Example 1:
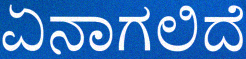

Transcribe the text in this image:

ಏನಾಗಲಿದೆ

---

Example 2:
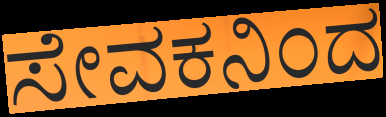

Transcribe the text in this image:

ಸೇವಕನಿಂದ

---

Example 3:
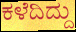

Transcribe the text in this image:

ಕಳೆದಿದ್ದು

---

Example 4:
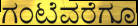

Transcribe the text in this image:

ಗಂಟೆವರೆಗೂ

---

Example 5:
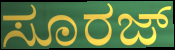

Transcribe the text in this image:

ಸೂರಜ್